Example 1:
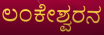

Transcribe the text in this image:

ಲಂಕೇಶ್ವರನ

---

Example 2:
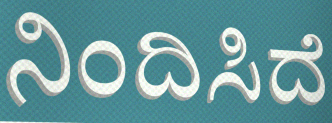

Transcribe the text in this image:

ನಿಂದಿಸಿದೆ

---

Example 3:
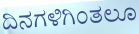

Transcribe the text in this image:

ದಿನಗಳಿಗಿಂತಲೂ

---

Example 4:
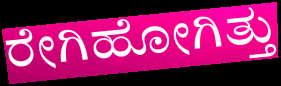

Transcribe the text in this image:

ರೇಗಿಹೋಗಿತ್ತು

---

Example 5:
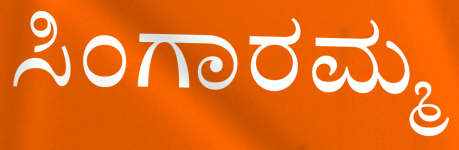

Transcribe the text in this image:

ಸಿಂಗಾರಮ್ಮ